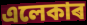
এলেকাৰ